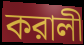
করালী